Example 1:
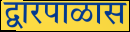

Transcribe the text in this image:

द्वारपाळास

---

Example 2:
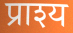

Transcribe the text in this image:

प्राश्य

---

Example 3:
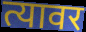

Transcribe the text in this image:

त्यावर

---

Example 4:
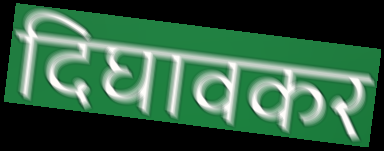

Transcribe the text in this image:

दिघावकर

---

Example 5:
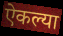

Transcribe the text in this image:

ऐकल्या